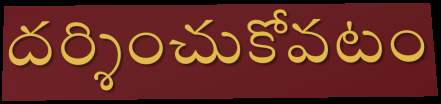
దర్శించుకోవటం